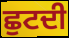
ਛੁਟਦੀ